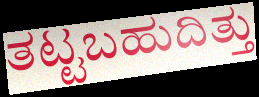
ತಟ್ಟಬಹುದಿತ್ತು